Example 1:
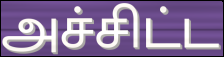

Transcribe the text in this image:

அச்சிட்ட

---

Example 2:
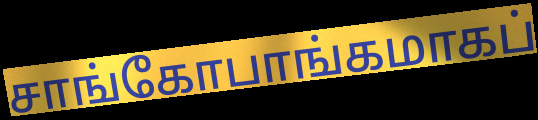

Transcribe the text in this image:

சாங்கோபாங்கமாகப்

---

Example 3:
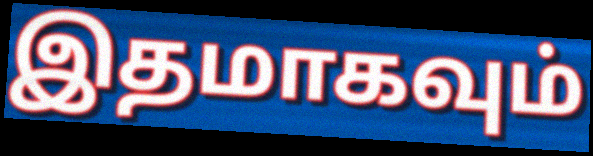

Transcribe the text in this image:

இதமாகவும்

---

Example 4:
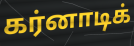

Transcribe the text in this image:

கர்னாடிக்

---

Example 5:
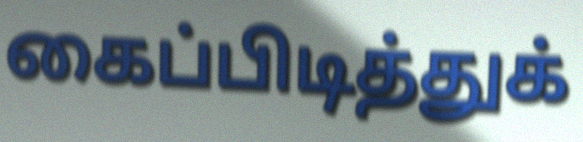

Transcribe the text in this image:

கைப்பிடித்துக்